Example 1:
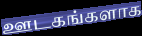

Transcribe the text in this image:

ஊடகங்களாக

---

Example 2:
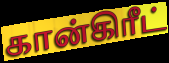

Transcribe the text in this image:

கான்கிரீட்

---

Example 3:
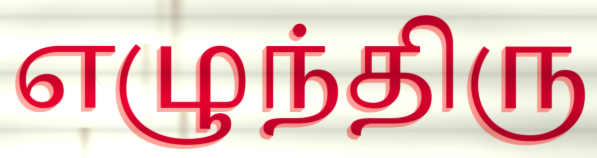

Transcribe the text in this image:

எழுந்திரு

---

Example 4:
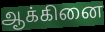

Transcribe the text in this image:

ஆக்கினை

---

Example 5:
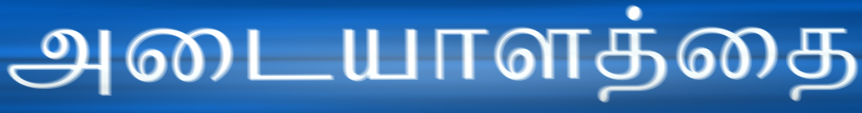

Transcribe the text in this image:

அடையாளத்தை